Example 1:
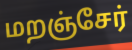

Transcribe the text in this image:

மறஞ்சேர்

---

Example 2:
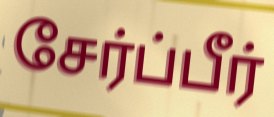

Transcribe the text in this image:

சேர்ப்பீர்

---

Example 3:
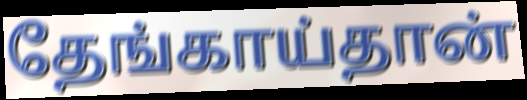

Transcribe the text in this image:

தேங்காய்தான்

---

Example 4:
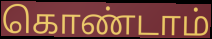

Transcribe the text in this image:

கொண்டாம்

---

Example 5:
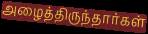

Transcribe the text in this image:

அழைத்திருந்தார்கள்